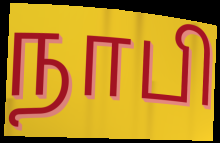
நாபி